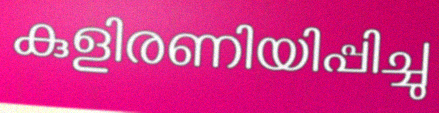
കുളിരണിയിപ്പിച്ചു